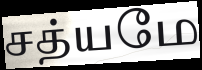
சத்யமே